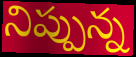
నిప్పున్న